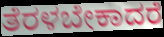
ತೆರಳಬೇಕಾದರೆ